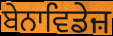
ਬੇਨਾਵਿਡੇਜ਼